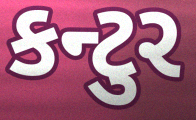
કન્ટુર